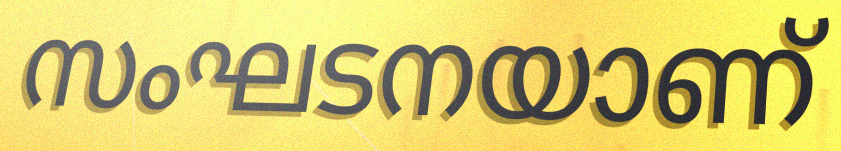
സംഘടനയാണ്